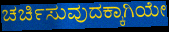
ಚರ್ಚಿಸುವುದಕ್ಕಾಗಿಯೇ